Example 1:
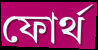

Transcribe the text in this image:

ফোর্থ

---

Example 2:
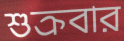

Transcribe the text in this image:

শুক্রবার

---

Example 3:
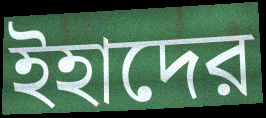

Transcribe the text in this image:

ইহাদের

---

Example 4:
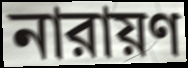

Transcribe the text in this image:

নারায়ণ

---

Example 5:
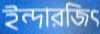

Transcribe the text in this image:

ইন্দারজিৎ